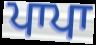
ਪਾਪਾ